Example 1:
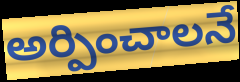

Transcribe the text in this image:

అర్పించాలనే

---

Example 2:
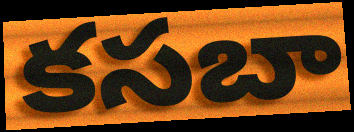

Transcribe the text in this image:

కసబా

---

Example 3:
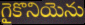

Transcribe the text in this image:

గైకొనియెను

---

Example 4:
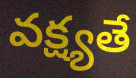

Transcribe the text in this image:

వక్ష్యతే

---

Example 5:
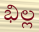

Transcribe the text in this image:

భిల్ల